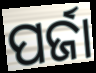
ପର୍ଜା